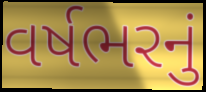
વર્ષભરનું